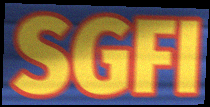
SGFI